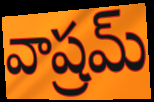
వాష్రమ్